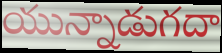
యున్నాడుగదా